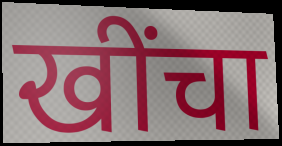
खींचा